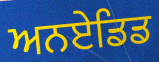
ਅਨਏਡਿਡ